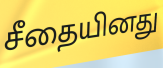
சீதையினது